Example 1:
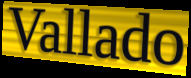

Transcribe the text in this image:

Vallado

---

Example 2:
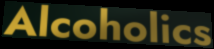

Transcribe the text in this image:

Alcoholics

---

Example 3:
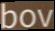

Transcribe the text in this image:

bov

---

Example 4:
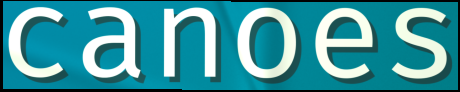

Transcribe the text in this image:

canoes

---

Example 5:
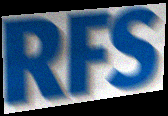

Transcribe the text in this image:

RFS